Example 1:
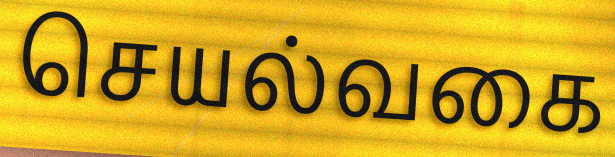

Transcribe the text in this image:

செயல்வகை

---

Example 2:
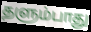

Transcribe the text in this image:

தளும்பாது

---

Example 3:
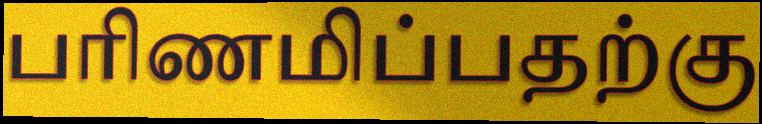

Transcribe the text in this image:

பரிணமிப்பதற்கு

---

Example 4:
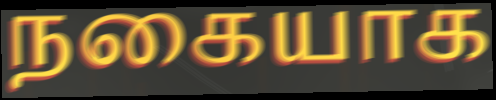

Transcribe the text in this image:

நகையாக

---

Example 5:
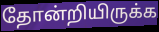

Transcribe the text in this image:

தோன்றியிருக்க